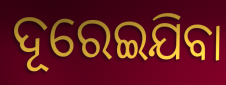
ଦୂରେଇଯିବା